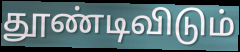
தூண்டிவிடும்